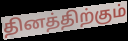
தினத்திற்கும்